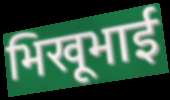
भिखूभाई